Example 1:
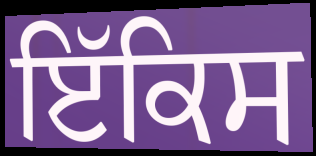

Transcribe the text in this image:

ਇੱਕਿਸ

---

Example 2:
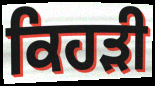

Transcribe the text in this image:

ਕਿਹੜੀ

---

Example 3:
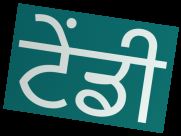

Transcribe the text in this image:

ਟੇਂਡੀ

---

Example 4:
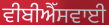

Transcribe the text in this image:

ਵੀਬੀਐੱਸਵਾਈ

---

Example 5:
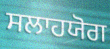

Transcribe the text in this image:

ਸਲਾਹਯੋਗ